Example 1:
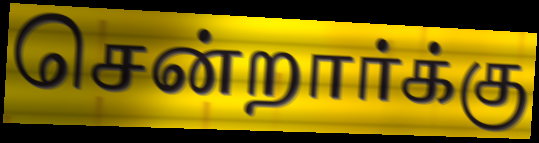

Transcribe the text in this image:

சென்றார்க்கு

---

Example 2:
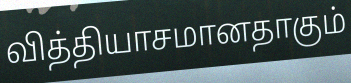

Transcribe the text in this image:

வித்தியாசமானதாகும்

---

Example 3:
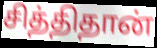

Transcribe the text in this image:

சித்திதான்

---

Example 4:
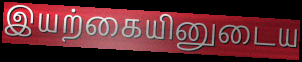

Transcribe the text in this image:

இயற்கையினுடைய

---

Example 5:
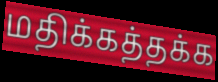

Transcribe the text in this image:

மதிக்கத்தக்க